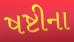
ષષ્ટીના